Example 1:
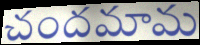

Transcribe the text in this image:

చందమామ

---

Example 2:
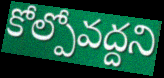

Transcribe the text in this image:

కోల్పోవద్దని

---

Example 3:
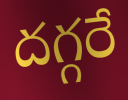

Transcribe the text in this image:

దగ్గరే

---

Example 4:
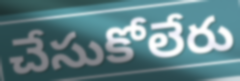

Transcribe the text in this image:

చేసుకోలేరు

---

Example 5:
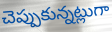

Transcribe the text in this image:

చెప్పుకున్నట్లుగా